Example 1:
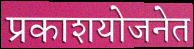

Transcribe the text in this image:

प्रकाशयोजनेत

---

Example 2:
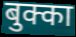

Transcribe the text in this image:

बुक्का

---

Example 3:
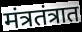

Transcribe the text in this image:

मंत्रतंत्रात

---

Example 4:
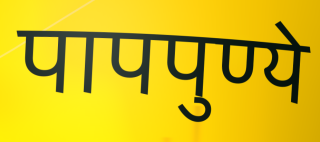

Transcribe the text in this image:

पापपुण्ये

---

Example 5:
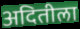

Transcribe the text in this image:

अदितीला